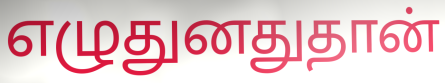
எழுதுனதுதான்